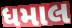
ધમાલ